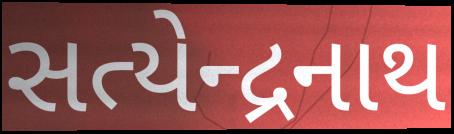
સત્યેન્દ્રનાથ